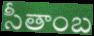
సీతాంబ